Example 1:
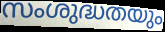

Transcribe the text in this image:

സംശുദ്ധതയും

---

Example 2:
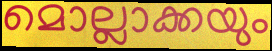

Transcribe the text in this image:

മൊല്ലാക്കയും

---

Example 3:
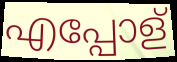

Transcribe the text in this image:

എപ്പോള്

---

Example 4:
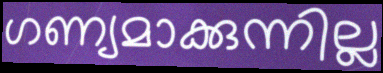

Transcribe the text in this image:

ഗണ്യമാക്കുന്നില്ല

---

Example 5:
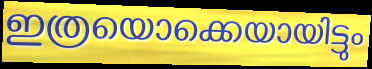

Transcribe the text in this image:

ഇത്രയൊക്കെയായിട്ടും